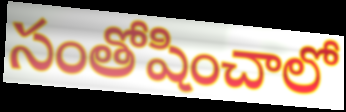
సంతోషించాలో